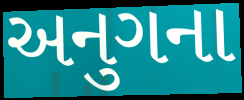
અનુગના